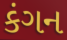
કંગન